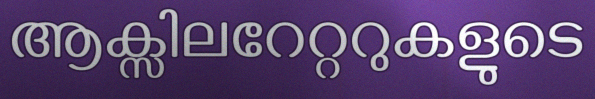
ആക്സിലറേറ്ററുകളുടെ